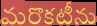
మరొకటీను